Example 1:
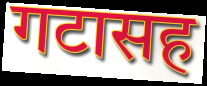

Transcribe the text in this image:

गटासह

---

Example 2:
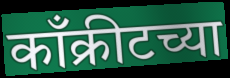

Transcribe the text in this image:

काँक्रीटच्या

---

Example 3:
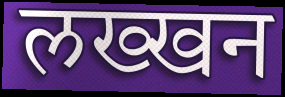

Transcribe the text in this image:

लख्खन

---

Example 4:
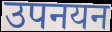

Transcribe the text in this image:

उपनयन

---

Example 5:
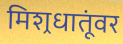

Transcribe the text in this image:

मिश्रधातूंवर